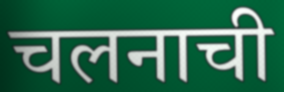
चलनाची